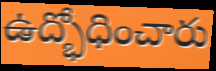
ఉద్భోధించారు